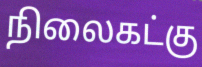
நிலைகட்கு